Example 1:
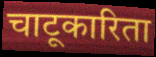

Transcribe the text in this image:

चाटूकारिता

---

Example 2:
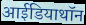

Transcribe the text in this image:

आईडियाथॉन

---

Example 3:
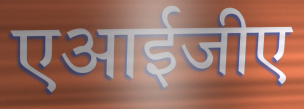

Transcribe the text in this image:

एआईजीए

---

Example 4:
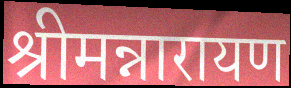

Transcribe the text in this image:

श्रीमन्नारायण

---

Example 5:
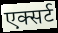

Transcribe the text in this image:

एक्सर्ट